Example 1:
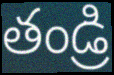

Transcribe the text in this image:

తండ్రి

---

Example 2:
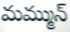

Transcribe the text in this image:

మమ్మున్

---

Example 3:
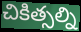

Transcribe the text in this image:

చికిత్సల్ని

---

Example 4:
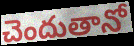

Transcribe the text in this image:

చెందుతానో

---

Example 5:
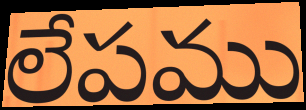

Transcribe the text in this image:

లేపము